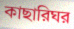
কাছারিঘর